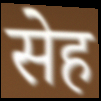
सेह